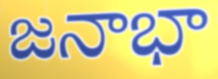
జనాభా